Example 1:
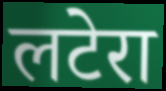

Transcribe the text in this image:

लटेरा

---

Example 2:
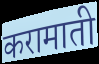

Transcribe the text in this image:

करामाती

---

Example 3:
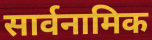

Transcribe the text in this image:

सार्वनामिक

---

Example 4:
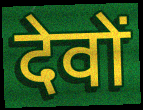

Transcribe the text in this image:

देवों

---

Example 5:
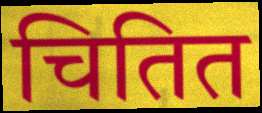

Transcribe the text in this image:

चितित